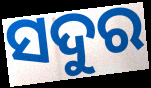
ସଦୁର